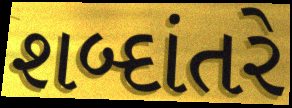
શબ્દાંતરે